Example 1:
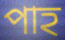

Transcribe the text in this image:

পাহ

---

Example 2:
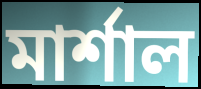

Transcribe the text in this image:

মাৰ্শাল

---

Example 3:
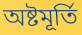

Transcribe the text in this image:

অষ্টমূৰ্তি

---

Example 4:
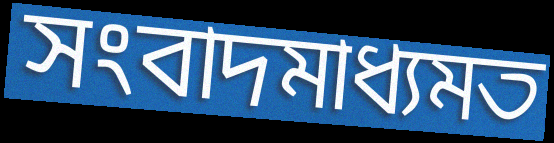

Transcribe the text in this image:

সংবাদমাধ্যমত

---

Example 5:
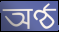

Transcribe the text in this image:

অণ্ঠ